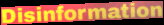
Disinformation